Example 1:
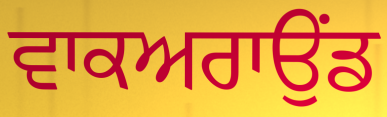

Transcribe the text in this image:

ਵਾਕਅਰਾਉਂਡ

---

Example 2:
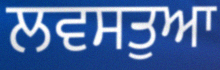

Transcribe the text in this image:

ਲਵਸਤੁਆ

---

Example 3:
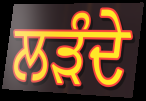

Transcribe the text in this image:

ਲੜੰਦੇ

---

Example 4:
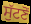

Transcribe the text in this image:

ਸੁੱਟਣੋਂ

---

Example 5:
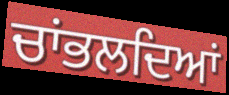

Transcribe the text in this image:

ਚਾਂਭਲਦਿਆਂ